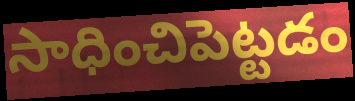
సాధించిపెట్టడం